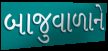
બાજુવાળાને